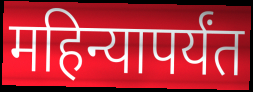
महिन्यापर्यंत